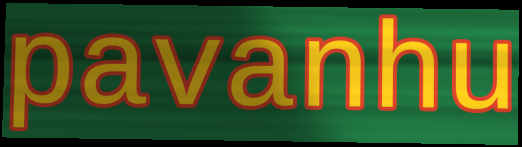
pavanhu